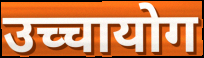
उच्चायोग